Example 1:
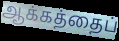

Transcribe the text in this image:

ஆக்கத்தைப்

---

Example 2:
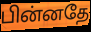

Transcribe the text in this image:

பின்னதே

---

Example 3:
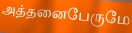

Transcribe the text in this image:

அத்தனைபேருமே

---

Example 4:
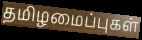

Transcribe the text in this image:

தமிழமைப்புகள்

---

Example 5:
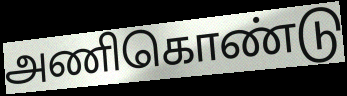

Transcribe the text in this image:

அணிகொண்டு